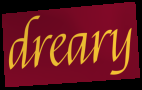
dreary